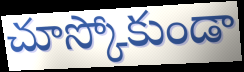
చూస్కోకుండా